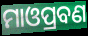
ମାଓପ୍ରବଣ